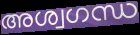
അശ്വഗന്ധ